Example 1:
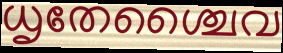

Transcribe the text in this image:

ധൃതേശ്ചൈവ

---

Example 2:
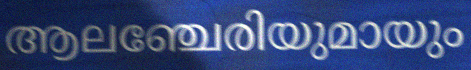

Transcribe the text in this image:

ആലഞ്ചേരിയുമായും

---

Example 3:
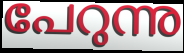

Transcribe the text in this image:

പേറുന്നു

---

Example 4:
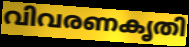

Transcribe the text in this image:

വിവരണകൃതി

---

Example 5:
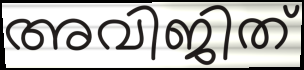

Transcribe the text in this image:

അവിജിത്